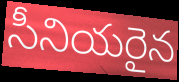
సీనియరైన